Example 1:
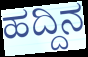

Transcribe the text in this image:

ಹದ್ದಿನ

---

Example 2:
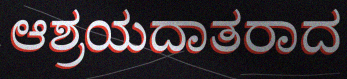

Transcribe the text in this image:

ಆಶ್ರಯದಾತರಾದ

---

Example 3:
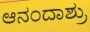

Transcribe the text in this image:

ಆನಂದಾಶ್ರು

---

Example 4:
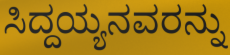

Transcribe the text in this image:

ಸಿದ್ದಯ್ಯನವರನ್ನು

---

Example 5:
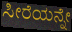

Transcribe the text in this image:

ಸೀರೆಯನ್ನೇ